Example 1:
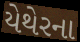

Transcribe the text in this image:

યેથેરના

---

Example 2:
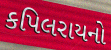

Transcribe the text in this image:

કપિલરાયનો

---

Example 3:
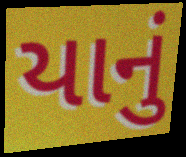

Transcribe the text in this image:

યાનું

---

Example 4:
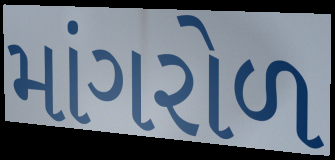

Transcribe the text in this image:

માંગરોળ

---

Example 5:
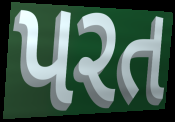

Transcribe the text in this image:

પરત